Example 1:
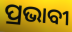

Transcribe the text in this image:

ପ୍ରଭାବୀ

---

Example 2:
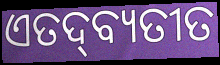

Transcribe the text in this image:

ଏତଦ୍‍ବ୍ୟତୀତ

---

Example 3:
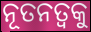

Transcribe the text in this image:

ନୂତନତ୍ବକୁ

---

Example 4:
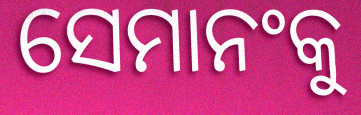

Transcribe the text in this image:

ସେମାନଂକୁ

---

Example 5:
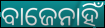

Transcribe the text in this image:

ବାଜେନାହିଁ